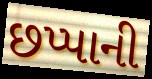
છપ્પાની